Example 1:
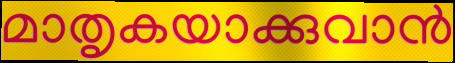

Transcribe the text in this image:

മാതൃകയാക്കുവാൻ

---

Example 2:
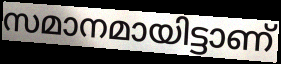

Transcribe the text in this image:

സമാനമായിട്ടാണ്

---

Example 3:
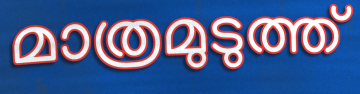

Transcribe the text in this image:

മാത്രമുടുത്ത്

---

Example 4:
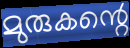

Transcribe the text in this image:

മുരുകന്റെ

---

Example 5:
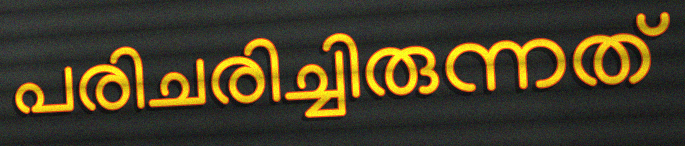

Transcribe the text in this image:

പരിചരിച്ചിരുന്നത്